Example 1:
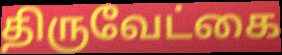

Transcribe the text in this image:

திருவேட்கை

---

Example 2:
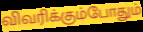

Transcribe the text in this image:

விவரிக்கும்போதும்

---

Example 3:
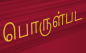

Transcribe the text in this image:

பொருள்பட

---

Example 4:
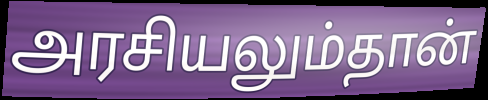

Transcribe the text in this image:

அரசியலும்தான்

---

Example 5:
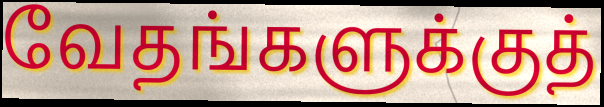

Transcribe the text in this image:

வேதங்களுக்குத்